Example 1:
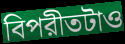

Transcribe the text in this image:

বিপরীতটাও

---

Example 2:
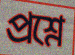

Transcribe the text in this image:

প্রশ্নে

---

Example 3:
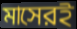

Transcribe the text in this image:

মাসেরই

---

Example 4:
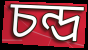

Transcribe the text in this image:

চন্দ্র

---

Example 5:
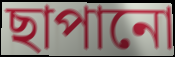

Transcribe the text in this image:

ছাপানো